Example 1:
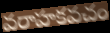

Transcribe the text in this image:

వరాహకవచం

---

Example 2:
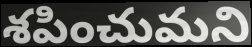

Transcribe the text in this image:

శపించుమని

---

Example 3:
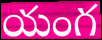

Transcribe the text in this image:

యంగ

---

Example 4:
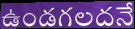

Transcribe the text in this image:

ఉండగలదనే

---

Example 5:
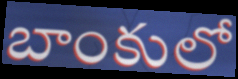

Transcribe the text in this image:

బాంకులో